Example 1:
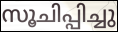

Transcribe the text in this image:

സൂചിപ്പിച്ചു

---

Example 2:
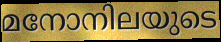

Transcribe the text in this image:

മനോനിലയുടെ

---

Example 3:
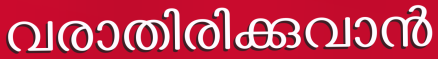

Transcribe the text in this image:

വരാതിരിക്കുവാൻ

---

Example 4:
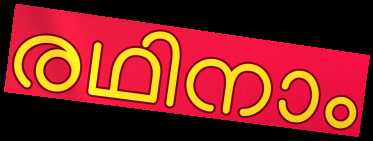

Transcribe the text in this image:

രഥിനാം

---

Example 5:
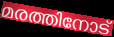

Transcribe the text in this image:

മരത്തിനോട്